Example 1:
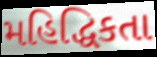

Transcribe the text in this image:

મહિદ્ધિકતા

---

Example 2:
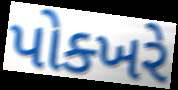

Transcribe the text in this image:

પોક્ખરે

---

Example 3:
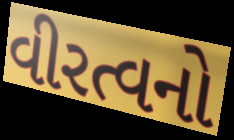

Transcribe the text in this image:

વીરત્વનો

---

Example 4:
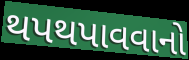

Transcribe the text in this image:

થપથપાવવાનો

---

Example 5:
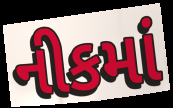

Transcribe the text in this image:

નીકમાં